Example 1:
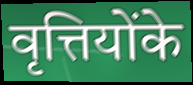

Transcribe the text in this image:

वृत्तियोंके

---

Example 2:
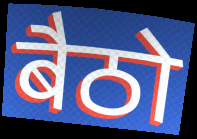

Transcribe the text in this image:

बैठो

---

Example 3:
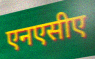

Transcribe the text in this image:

एनएसीए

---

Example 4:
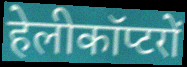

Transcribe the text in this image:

हेलीकॉप्टरों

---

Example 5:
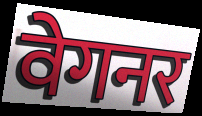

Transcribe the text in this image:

वेगनर